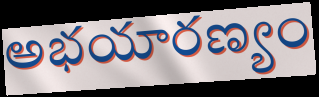
అభయారణ్యం